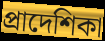
প্রাদেশিকা